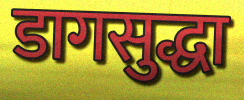
डागसुद्धा